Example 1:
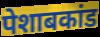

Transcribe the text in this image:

पेशाबकांड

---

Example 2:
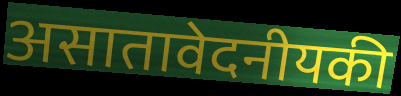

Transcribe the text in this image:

असातावेदनीयकी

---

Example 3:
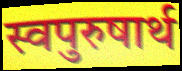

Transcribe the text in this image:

स्वपुरुषार्थ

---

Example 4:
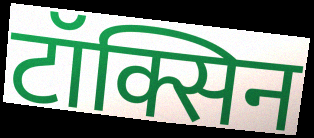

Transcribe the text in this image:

टॉक्सिन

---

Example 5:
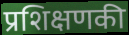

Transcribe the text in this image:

प्रशिक्षणकी